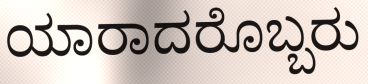
ಯಾರಾದರೊಬ್ಬರು